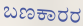
ಬಣಕಾರರ